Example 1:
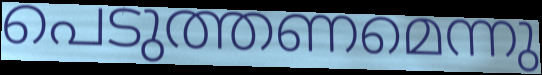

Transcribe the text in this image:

പെടുത്തണമെന്നു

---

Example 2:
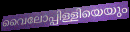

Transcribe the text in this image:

വൈലോപ്പിള്ളിയെയും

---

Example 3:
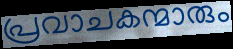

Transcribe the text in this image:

പ്രവാചകന്മാരും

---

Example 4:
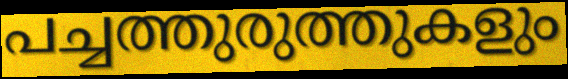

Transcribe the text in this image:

പച്ചത്തുരുത്തുകളും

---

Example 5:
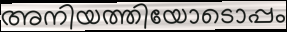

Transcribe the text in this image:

അനിയത്തിയോടൊപ്പം